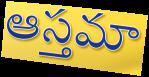
ఆస్తమా